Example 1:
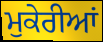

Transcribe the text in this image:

ਮੁਕੇਰੀਆਂ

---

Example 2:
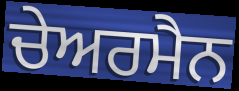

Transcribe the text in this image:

ਚੇਅਰਮੈਨ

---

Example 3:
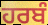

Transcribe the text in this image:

ਹਰਬੰ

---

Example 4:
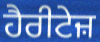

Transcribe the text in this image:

ਹੈਰੀਟੇਜ਼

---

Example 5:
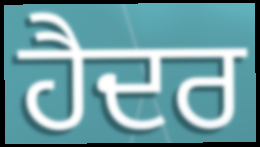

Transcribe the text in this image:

ਹੈਦਰ